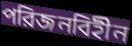
পরিজনবিহীন